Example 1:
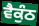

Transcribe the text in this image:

ਵੈਕੁੰਠ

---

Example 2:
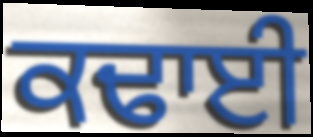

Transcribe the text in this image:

ਕਢਾਈ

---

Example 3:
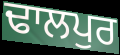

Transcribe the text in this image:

ਢਾਲਪੁਰ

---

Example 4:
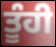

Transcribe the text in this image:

ਤੂੰਹੀ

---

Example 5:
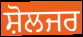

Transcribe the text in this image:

ਸ਼ੋਲਜਰ